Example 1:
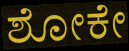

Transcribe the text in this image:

ಶೋಕೇ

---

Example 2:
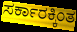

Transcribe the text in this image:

ಸರ್ಕಾರಕ್ಕಿಂತ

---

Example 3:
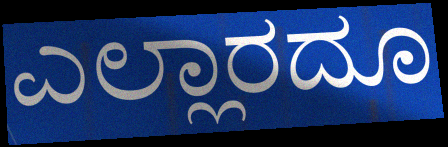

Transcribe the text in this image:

ಎಲ್ಲಾರದೂ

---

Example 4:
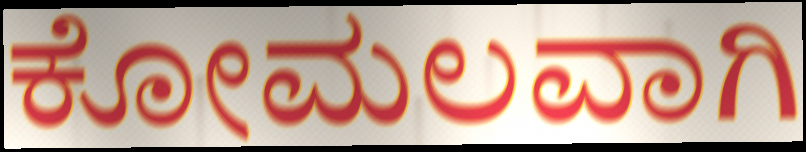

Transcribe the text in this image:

ಕೋಮಲವಾಗಿ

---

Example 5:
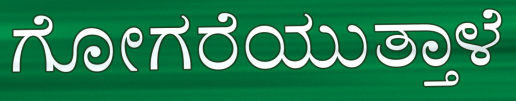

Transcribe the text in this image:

ಗೋಗರೆಯುತ್ತಾಳೆ